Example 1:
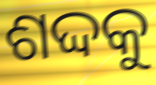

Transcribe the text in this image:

ଶଦ୍ଦକୁ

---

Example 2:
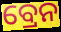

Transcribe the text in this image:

ବ୍ରେନ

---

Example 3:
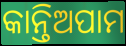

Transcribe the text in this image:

କାନ୍ତିଅପାମ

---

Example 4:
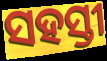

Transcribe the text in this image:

ସହସ୍ତୀ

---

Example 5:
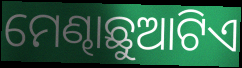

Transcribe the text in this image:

ମେଣ୍ଢାଛୁଆଟିଏ